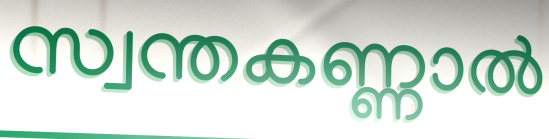
സ്വന്തകണ്ണാൽ